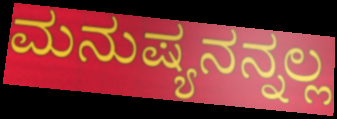
ಮನುಷ್ಯನನ್ನಲ್ಲ